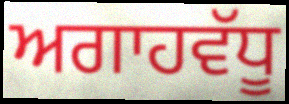
ਅਗਾਹਵੱਧੂ